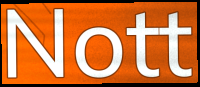
Nott